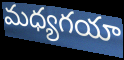
మధ్యగయా